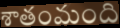
శాతంమంది